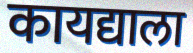
कायद्याला